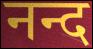
नन्द